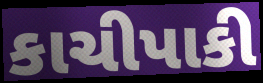
કાચીપાકી